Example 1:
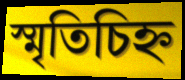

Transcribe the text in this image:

স্মৃতিচিহ্ন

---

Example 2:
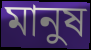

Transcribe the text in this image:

মানুষ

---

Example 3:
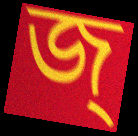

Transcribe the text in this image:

জ্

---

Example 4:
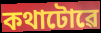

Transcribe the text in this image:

কথাটোৱে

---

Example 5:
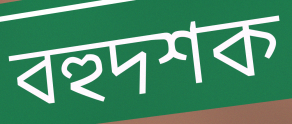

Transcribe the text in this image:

বহুদশক